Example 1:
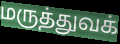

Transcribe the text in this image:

மருத்துவக்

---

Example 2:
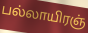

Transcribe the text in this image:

பல்லாயிரஞ்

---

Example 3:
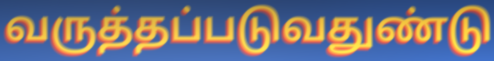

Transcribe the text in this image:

வருத்தப்படுவதுண்டு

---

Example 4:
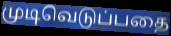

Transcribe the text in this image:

முடிவெடுப்பதை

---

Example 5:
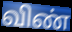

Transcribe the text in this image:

விண்